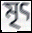
মৃৎ